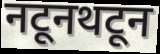
नटूनथटून